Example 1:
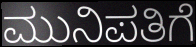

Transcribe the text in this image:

ಮುನಿಪತಿಗೆ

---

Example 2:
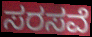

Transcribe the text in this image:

ಸರಸವೆ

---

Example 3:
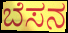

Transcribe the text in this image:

ಬೆಸನ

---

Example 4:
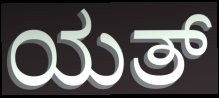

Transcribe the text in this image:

ಯತ್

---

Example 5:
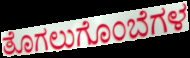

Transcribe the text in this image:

ತೊಗಲುಗೊಂಬೆಗಳ